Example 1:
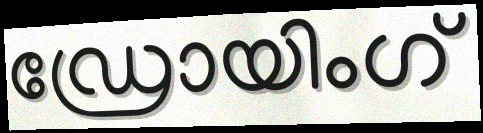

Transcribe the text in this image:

ഡ്രോയിംഗ്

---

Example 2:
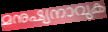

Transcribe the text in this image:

മനുഷ്യനാവുക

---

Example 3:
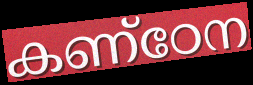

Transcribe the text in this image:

കണ്ഠേന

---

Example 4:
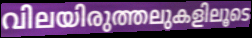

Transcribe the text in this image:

വിലയിരുത്തലുകളിലൂടെ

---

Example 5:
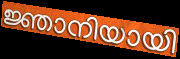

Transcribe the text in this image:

ജ്ഞാനിയായി